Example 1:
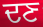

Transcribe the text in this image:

ਦਣ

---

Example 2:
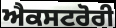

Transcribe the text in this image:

ਐਕਸਟਰੋਰੀ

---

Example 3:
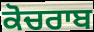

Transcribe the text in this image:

ਕੋਚਰਾਬ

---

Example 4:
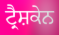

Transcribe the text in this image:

ਟ੍ਰੈਸ਼ਕੇਨ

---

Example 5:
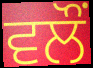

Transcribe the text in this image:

ਵਲੌਂ